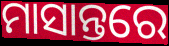
ମାସାନ୍ତରେ